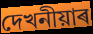
দেখনীয়াৰ